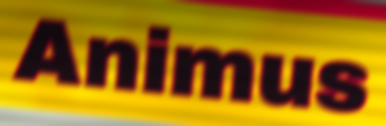
Animus